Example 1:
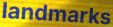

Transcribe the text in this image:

landmarks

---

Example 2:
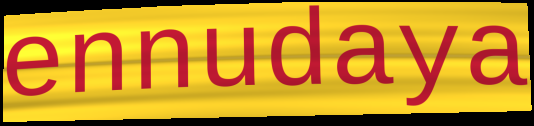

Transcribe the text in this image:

ennudaya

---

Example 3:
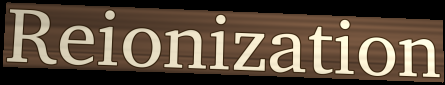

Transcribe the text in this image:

Reionization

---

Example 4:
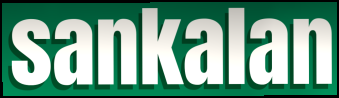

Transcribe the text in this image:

sankalan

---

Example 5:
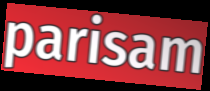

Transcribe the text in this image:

parisam